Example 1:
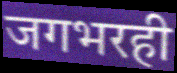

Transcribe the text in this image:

जगभरही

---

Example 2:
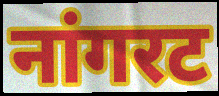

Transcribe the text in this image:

नांगरट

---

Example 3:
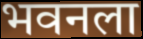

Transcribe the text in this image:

भवनला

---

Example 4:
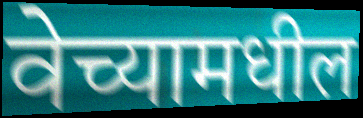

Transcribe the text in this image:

वेच्यामधील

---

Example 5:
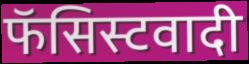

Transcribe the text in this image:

फॅसिस्टवादी